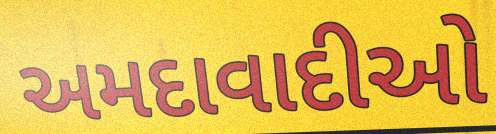
અમદાવાદીઓ